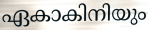
ഏകാകിനിയും